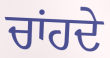
ਚਾਂਹਦੇ